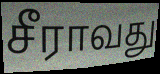
சீராவது